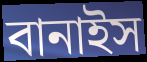
বানাইস